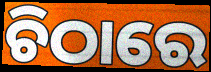
ଚିଠାରେ